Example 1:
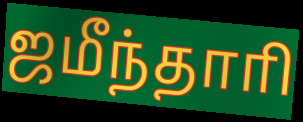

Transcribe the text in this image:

ஜமீந்தாரி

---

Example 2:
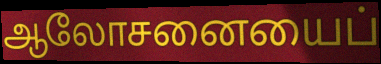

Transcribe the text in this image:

ஆலோசனையைப்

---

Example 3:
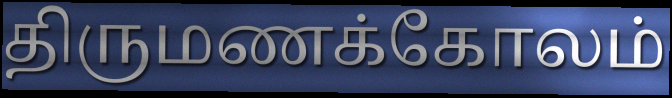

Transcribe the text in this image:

திருமணக்கோலம்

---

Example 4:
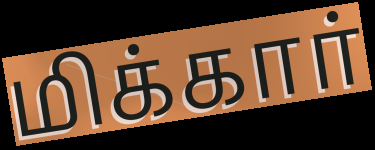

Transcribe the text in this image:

மிக்கார்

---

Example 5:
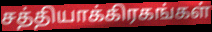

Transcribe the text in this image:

சத்தியாக்கிரகங்கள்